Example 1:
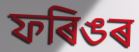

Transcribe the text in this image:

ফৰিঙৰ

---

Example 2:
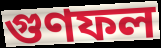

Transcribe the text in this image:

গুণফল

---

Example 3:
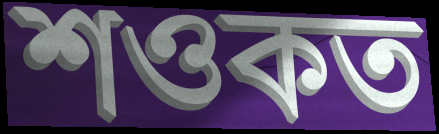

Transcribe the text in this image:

শওকত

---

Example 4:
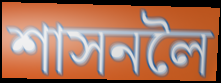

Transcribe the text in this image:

শাসনলৈ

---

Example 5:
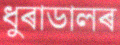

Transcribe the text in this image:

ধুৰাডালৰ